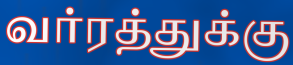
வர்ரத்துக்கு